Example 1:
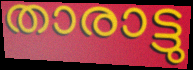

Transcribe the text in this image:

താരാട്ടു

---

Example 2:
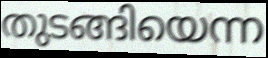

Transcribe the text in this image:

തുടങ്ങിയെന്ന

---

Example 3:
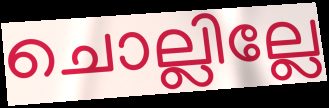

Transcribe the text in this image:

ചൊല്ലില്ലേ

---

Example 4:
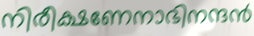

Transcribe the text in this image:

നിരീക്ഷണേനാഭിനന്ദൻ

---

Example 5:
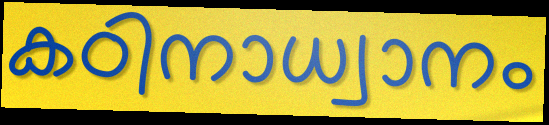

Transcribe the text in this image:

കഠിനാധ്വാനം